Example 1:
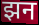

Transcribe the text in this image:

झन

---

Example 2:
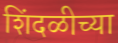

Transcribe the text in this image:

शिंदळीच्या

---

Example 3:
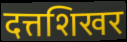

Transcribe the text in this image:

दत्तशिखर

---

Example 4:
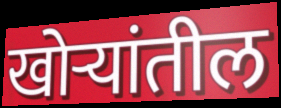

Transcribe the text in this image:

खोऱ्यांतील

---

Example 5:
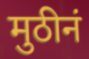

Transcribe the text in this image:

मुठीनं